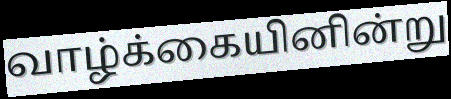
வாழ்க்கையினின்று